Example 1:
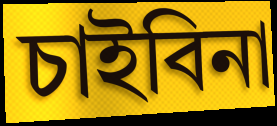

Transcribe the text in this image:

চাইবিনা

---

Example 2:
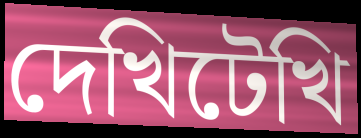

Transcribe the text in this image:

দেখিটেখি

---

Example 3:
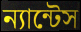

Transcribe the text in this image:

ন্যান্টেস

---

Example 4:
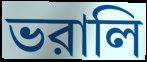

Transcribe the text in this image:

ভরালি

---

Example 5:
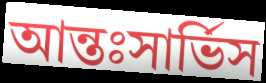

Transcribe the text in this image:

আন্তঃসার্ভিস